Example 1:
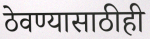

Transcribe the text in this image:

ठेवण्यासाठीही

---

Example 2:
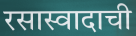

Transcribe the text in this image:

रसास्वादाची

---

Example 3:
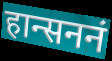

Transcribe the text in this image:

हान्सननं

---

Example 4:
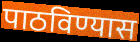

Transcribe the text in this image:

पाठविण्यास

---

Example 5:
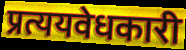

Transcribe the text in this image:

प्रत्ययवेधकारी